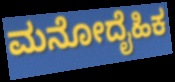
ಮನೋದೈಹಿಕ